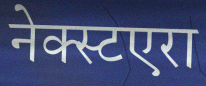
नेक्स्टएरा